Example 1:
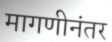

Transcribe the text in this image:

मागणीनंतर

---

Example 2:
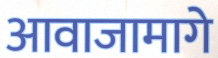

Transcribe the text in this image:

आवाजामागे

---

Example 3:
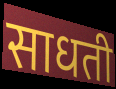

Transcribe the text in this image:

साधती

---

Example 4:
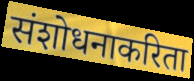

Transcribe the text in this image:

संशोधनाकरिता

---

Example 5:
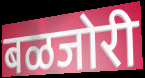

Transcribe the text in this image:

बळजोरी